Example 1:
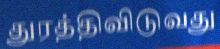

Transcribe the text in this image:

துரத்திவிடுவது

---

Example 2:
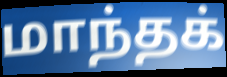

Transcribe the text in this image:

மாந்தக்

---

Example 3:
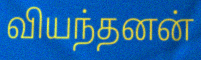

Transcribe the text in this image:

வியந்தனன்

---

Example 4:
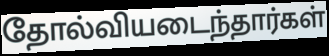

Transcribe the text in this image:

தோல்வியடைந்தார்கள்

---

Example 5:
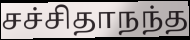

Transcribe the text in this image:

சச்சிதாநந்த